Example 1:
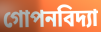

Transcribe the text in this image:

গোপনবিদ্যা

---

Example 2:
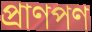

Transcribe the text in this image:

প্রাণপণ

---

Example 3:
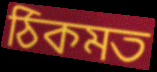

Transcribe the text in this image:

ঠিকমত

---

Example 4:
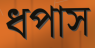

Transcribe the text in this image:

ধপাস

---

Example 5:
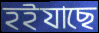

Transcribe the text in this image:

হইযাছে